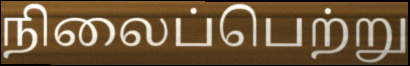
நிலைப்பெற்று